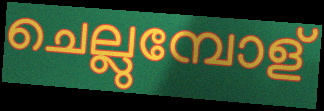
ചെല്ലുമ്പോള്